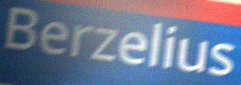
Berzelius